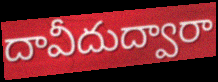
దావీదుద్వారా